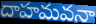
దాహమవనా